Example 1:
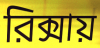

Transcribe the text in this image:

রিক্সায়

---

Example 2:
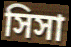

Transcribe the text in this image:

সিসা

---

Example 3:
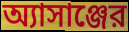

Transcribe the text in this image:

অ্যাসাঞ্জের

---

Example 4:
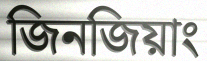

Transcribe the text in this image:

জিনজিয়াং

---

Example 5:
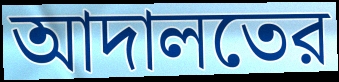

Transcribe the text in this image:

আদালতের